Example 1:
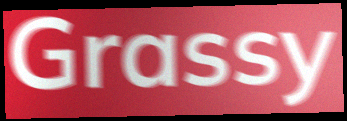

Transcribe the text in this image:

Grassy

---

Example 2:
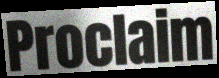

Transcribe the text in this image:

Proclaim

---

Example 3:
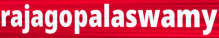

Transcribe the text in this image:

rajagopalaswamy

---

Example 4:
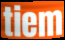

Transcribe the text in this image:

tiem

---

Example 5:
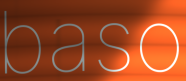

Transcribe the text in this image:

baso